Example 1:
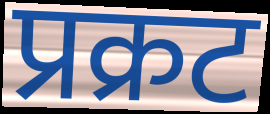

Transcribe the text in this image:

प्रक्रट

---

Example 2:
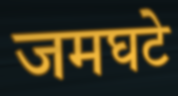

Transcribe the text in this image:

जमघटे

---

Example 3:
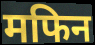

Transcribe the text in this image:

मफिन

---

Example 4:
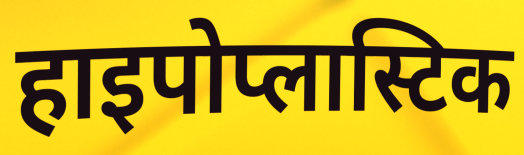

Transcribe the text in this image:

हाइपोप्लास्टिक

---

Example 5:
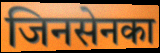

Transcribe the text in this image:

जिनसेनका